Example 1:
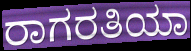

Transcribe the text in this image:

ರಾಗರತಿಯಾ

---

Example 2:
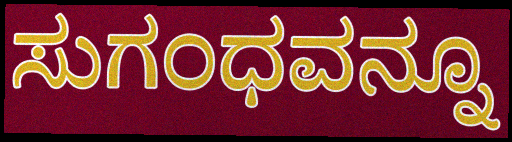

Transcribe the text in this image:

ಸುಗಂಧವನ್ನೂ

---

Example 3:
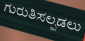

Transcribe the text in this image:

ಗುರುತಿಸಲ್ಪಡಲು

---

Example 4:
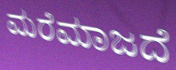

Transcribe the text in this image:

ಮರೆಮಾಜದೆ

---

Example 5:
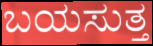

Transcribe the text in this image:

ಬಯಸುತ್ತ